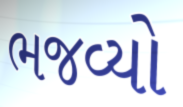
ભજવ્યો